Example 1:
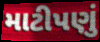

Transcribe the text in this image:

માટીપણું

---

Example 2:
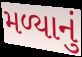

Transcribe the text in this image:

મળ્યાનું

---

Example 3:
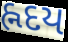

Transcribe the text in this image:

હ્નદય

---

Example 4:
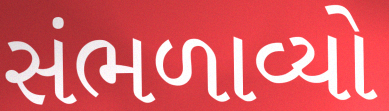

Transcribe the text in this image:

સંભળાવ્યો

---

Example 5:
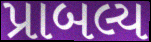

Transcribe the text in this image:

પ્રાબલ્ય